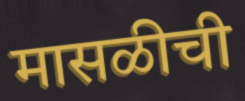
मासळीची